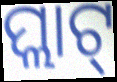
ପ୍ଲାଟ୍